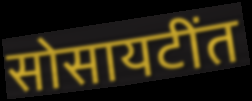
सोसायटींत